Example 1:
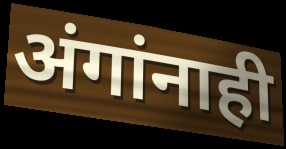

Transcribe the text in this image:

अंगांनाही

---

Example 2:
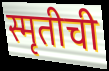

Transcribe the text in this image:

स्मृतीची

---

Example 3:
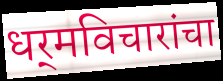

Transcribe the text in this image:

धर्मविचारांचा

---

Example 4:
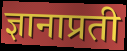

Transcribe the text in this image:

ज्ञानाप्रती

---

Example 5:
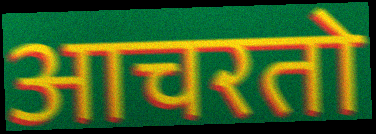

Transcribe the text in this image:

आचरतो